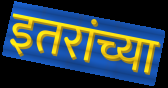
इतरांच्या